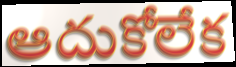
ఆదుకోలేక